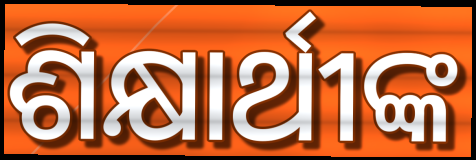
ଶିକ୍ଷାର୍ଥୀଙ୍କ